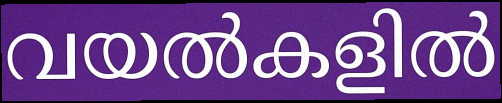
വയൽകളിൽ